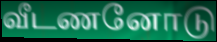
வீடணனோடு